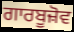
ਗਾਰਬੂਜ਼ੋਵ